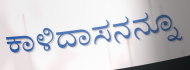
ಕಾಳಿದಾಸನನ್ನೂ